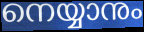
നെയ്യാനും